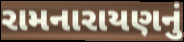
રામનારાયણનું